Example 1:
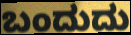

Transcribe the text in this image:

ಬಂದುದು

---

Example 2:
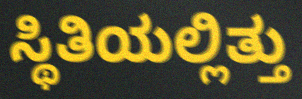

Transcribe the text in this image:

ಸ್ಥಿತಿಯಲ್ಲಿತ್ತು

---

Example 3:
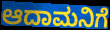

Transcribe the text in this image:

ಆದಾಮನಿಗೆ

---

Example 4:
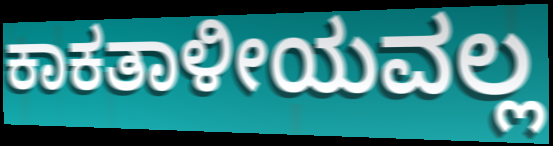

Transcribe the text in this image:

ಕಾಕತಾಳೀಯವಲ್ಲ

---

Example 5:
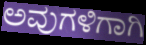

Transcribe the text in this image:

ಅವುಗಳಿಗಾಗಿ